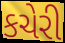
કચેરી